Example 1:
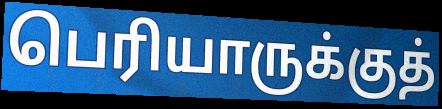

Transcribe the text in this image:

பெரியாருக்குத்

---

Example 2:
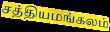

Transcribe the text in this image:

சத்தியமங்கலம்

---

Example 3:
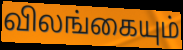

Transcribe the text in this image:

விலங்கையும்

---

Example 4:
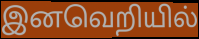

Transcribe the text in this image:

இனவெறியில்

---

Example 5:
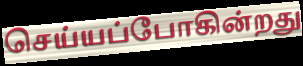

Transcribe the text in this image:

செய்யப்போகின்றது